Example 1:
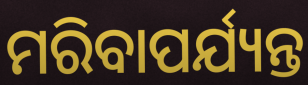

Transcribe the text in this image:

ମରିବାପର୍ଯ୍ୟନ୍ତ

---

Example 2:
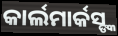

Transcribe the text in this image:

କାର୍ଲମାର୍କସ୍ଙ୍କ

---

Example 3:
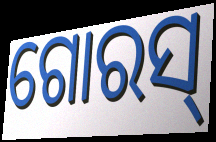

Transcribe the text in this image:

ଗୋରସ୍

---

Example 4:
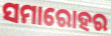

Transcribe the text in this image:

ସମାରୋହର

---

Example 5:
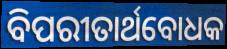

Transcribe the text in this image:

ବିପରୀତାର୍ଥବୋଧକ